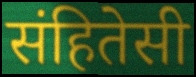
संहितेसी